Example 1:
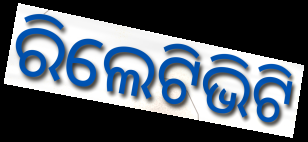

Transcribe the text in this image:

ରିଲେଟିଭିଟି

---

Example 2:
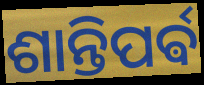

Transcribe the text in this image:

ଶାନ୍ତିପର୍ଵ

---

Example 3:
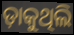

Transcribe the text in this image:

ଡ଼ାକୁଥିଲି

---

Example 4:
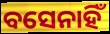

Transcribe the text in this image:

ବସେନାହିଁ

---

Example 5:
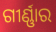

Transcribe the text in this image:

ଗୀର୍ଣ୍ଣାର